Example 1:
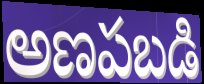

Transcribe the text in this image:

అణపబడి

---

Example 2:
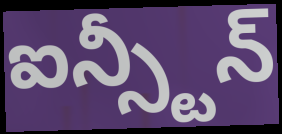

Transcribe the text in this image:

ఐన్స్టీన్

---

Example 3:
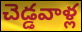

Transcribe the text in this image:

చెడ్డవాళ్ల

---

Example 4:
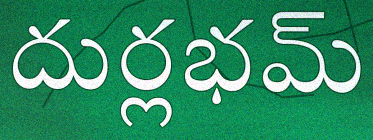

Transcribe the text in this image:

దుర్లభమ్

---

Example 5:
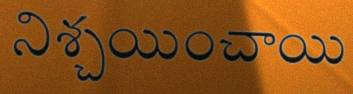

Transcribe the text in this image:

నిశ్చయించాయి